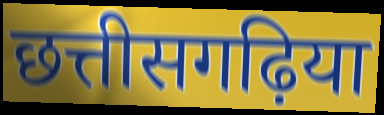
छत्तीसगढ़िया